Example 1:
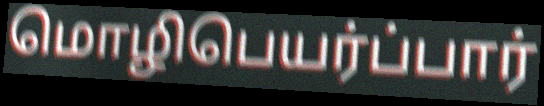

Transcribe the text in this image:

மொழிபெயர்ப்பார்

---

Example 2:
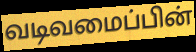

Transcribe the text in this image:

வடிவமைப்பின்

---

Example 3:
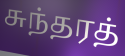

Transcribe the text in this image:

சுந்தரத்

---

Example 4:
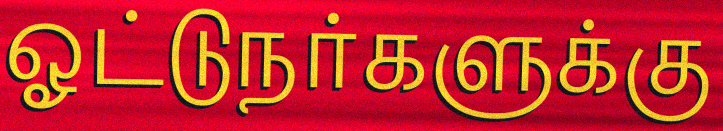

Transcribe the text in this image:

ஓட்டுநர்களுக்கு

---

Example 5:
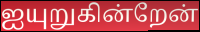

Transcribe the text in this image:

ஐயுறுகின்றேன்